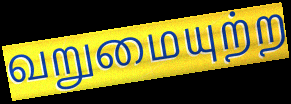
வறுமையுற்ற